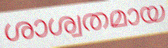
ശാശ്വതമായ